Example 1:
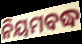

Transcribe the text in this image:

ନିୟମବଦ୍ଧ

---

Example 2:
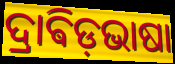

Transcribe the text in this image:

ଦ୍ରାଵିଡ଼ଭାଷା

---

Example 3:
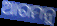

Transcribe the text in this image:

ଆଗମନୁ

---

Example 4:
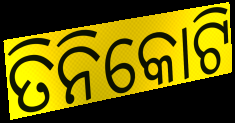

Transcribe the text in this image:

ତିନିକୋଟି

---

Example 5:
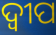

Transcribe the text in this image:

ଦ୍ବୀପ